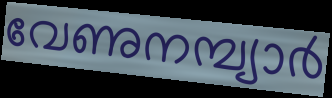
വേണുനമ്പ്യാർ